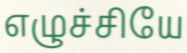
எழுச்சியே